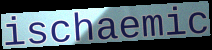
ischaemic